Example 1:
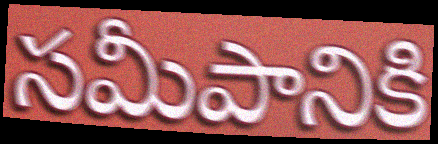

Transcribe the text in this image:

సమీపానికి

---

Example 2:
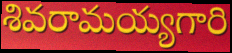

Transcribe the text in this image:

శివరామయ్యగారి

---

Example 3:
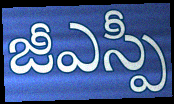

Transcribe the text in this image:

జీఎస్పీ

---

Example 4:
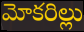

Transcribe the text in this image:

మోకరిల్లు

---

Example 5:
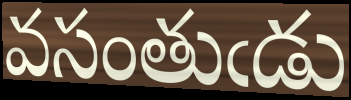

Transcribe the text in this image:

వసంతుఁడు